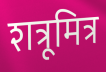
शत्रूमित्र